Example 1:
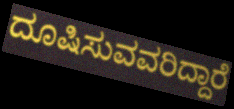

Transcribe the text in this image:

ದೂಷಿಸುವವರಿದ್ದಾರೆ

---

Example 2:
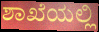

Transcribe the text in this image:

ಶಾಖೆಯಲ್ಲಿ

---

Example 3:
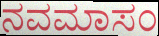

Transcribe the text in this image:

ನವಮಾಸಂ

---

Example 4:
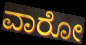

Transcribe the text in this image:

ವಾರೋ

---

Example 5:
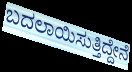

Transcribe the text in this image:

ಬದಲಾಯಿಸುತ್ತಿದ್ದೇನೆ